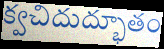
క్వచిదుద్భూతం